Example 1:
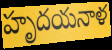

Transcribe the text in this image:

హృదయనాళ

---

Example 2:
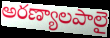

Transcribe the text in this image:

అరణ్యాలపాలై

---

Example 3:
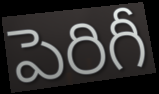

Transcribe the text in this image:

పెరిగీ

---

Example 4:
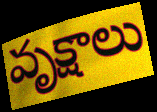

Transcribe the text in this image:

వృక్షాలు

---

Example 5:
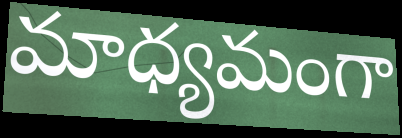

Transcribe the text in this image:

మాధ్యమంగా